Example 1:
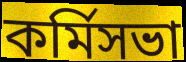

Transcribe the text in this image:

কর্মিসভা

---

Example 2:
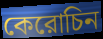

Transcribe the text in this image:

কেরোচিন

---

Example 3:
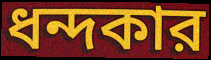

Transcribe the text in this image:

ধন্দকার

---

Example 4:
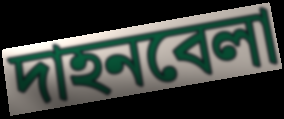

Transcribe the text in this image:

দাহনবেলা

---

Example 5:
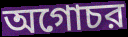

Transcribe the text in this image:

অগোচর